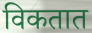
विकतात